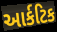
આર્કટિક